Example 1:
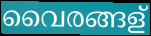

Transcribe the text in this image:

വൈരങ്ങള്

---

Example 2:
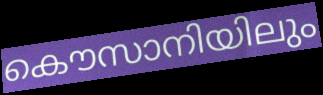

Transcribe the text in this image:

കൌസാനിയിലും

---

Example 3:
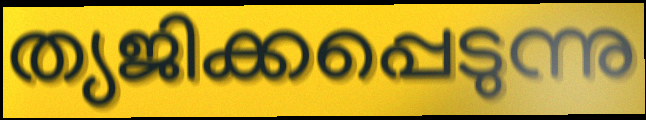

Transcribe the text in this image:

ത്യജിക്കപ്പെടുന്നു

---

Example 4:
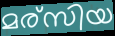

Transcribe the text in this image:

മര്സിയ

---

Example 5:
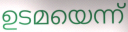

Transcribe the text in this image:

ഉടമയെന്ന്